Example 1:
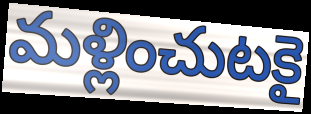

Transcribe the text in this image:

మళ్లించుటకై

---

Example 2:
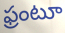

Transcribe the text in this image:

ఫ్రంటూ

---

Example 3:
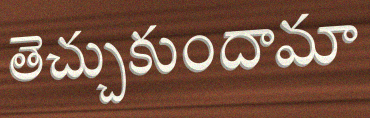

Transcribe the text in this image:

తెచ్చుకుందామా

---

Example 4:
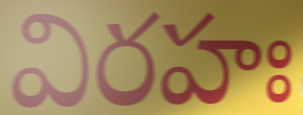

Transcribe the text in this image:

విరహః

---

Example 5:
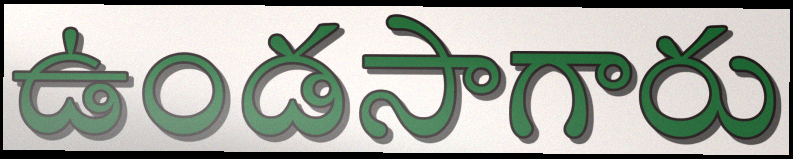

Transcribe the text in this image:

ఉండసాగారు